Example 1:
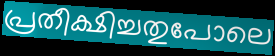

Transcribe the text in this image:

പ്രതീക്ഷിച്ചതുപോലെ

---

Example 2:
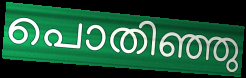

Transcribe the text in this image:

പൊതിഞ്ഞു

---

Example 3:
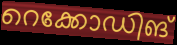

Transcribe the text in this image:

റെക്കോഡിങ്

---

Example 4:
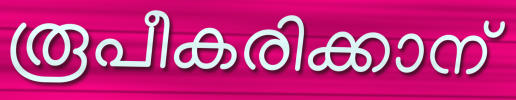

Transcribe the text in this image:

രൂപീകരിക്കാന്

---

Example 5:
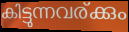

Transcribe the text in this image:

കിട്ടുന്നവര്ക്കും